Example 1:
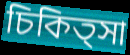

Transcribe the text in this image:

চিকিত্সা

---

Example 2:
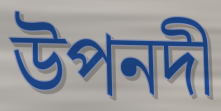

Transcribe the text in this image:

উপনদী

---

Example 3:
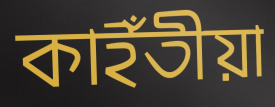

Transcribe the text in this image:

কাইঁতীয়া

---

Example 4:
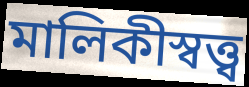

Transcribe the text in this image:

মালিকীস্বত্ত্ব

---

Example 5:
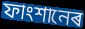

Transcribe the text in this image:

ফাংশানেৰ